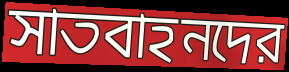
সাতবাহনদের